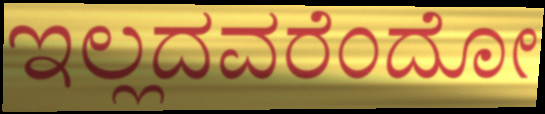
ಇಲ್ಲದವರೆಂದೋ